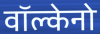
वॉल्केनो